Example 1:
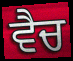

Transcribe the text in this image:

ਵੈਚ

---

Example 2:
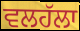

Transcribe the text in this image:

ਵਲਹੱਲਾ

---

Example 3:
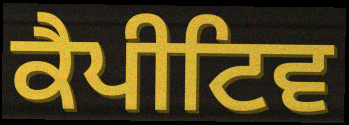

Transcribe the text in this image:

ਕੈਪੀਟਿਵ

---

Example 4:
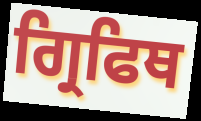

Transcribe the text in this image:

ਗ੍ਰਿਫਿਥ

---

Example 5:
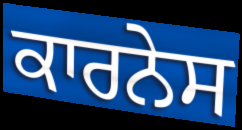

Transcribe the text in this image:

ਕਾਰਨੇਸ